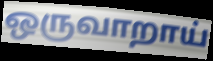
ஒருவாறாய்